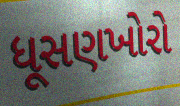
ધૂસણખોરો